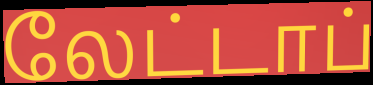
லேட்டாப்